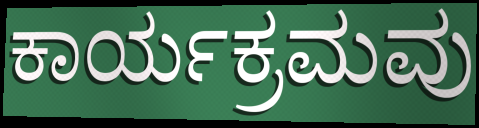
ಕಾರ್ಯಕ್ರಮವು